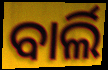
ବାର୍ଲି